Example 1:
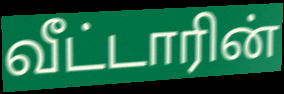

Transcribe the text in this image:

வீட்டாரின்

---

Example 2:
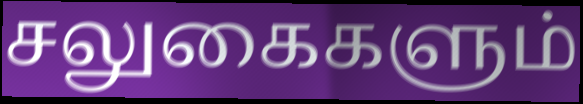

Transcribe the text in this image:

சலுகைகளும்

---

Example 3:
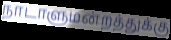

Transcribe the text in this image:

நாடாளுமன்றத்துக்கு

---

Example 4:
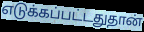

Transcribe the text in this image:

எடுக்கப்பட்டதுதான்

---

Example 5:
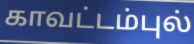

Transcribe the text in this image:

காவட்டம்புல்